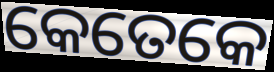
କେତେକେ